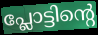
പ്ലോട്ടിന്റെ